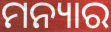
ମନ୍ୟାର